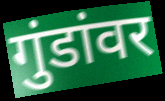
गुंडांवर